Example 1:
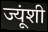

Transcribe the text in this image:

ज्यूंशी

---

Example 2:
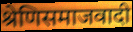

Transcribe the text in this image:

श्रेणिसमाजवादी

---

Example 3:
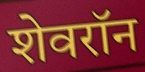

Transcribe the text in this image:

शेवरॉन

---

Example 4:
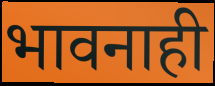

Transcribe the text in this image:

भावनाही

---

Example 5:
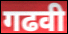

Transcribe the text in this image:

गढवी